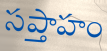
సప్తాహం